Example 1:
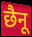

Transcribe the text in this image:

छैनू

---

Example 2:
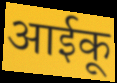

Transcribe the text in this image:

आईकू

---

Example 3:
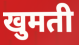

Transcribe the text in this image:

खुमती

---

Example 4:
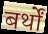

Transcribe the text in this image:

बर्थों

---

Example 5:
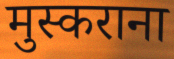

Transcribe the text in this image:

मुस्कराना